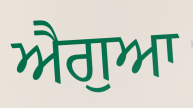
ਐਗੁਆ